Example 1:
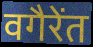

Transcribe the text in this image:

वगैरेंत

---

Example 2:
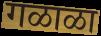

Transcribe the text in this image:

गळाळा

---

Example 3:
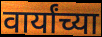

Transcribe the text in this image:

वार्यांच्या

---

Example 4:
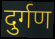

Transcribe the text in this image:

दुर्गण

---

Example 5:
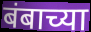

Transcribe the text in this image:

बंबाच्या